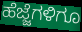
ಹೆಜ್ಜೆಗಳಿಗೂ